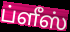
ப்ளீஸ்